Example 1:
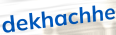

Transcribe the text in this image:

dekhachhe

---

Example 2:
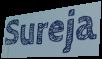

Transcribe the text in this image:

Sureja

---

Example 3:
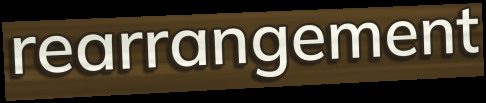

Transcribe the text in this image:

rearrangement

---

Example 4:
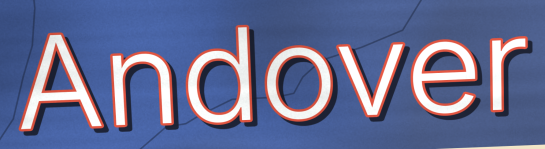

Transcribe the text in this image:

Andover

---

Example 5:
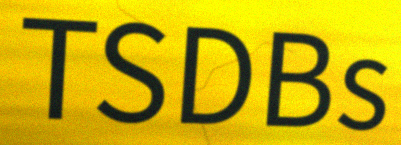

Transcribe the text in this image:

TSDBs